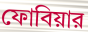
ফোবিয়ার